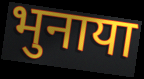
भुनाया